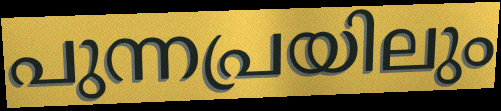
പുന്നപ്രയിലും